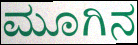
ಮೂಗಿನ